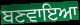
ਬਣਵਾਇਆ